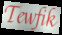
Tewfik